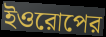
ইওরোপের